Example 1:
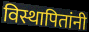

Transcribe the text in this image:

विस्थापितांनी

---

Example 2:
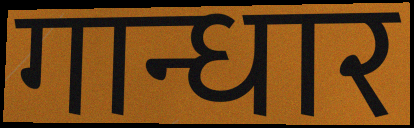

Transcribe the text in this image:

गान्धार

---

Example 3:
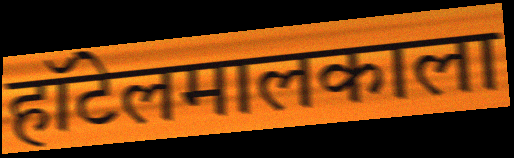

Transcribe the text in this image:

हॉटेलमालकाला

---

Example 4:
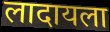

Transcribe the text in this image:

लादायला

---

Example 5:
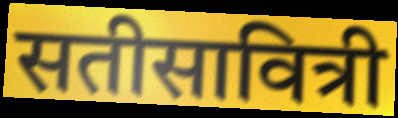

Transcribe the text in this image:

सतीसावित्री